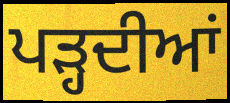
ਪੜ੍ਹਦੀਆਂ